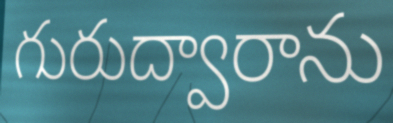
గురుద్వారాను